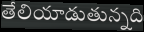
తేలియాడుతున్నది